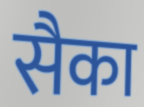
सैका